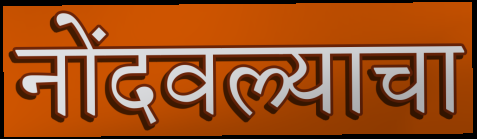
नोंदवल्याचा